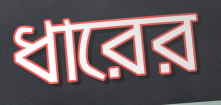
ধারের